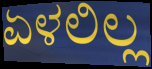
ಏಳಲಿಲ್ಲ